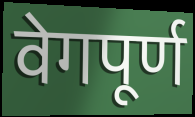
वेगपूर्ण